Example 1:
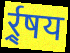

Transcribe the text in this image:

र्र्र्षय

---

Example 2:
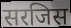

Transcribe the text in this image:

सरजिस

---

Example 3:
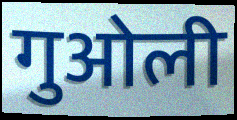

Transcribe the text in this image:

गुओली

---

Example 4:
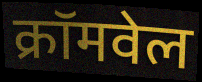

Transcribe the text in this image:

क्रॉमवेल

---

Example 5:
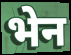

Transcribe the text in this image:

भेन